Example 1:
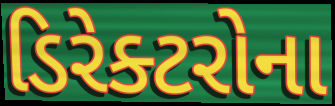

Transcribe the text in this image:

ડિરેક્ટરોના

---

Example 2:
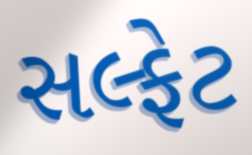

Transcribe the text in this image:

સલ્ફેટ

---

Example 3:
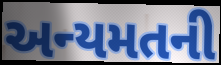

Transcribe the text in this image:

અન્યમતની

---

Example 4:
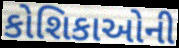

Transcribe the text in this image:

કોશિકાઓની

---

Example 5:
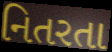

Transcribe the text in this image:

નિતરતા